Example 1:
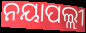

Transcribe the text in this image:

ନୟାପଲ୍ଲୀ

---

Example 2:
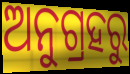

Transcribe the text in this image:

ଅନୁଗ୍ରହରୁ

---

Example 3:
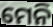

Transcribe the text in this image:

ମେନି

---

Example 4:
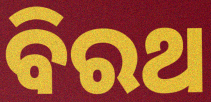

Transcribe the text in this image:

ବିରଥ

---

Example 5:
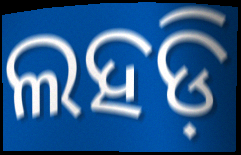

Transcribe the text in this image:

ଲହଡ଼ି